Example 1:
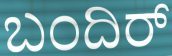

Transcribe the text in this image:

ಬಂದಿರ್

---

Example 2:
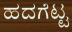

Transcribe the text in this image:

ಹದಗೆಟ್ಟ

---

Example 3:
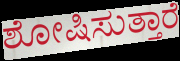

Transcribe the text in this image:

ಶೋಷಿಸುತ್ತಾರೆ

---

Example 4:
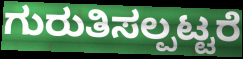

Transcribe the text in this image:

ಗುರುತಿಸಲ್ಪಟ್ಟರೆ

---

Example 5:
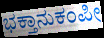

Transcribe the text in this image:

ಭಕ್ತಾನುಕಂಪೀ